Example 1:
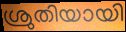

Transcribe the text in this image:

ശ്രുതിയായി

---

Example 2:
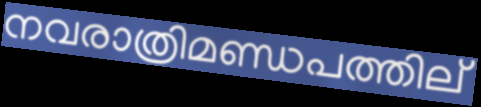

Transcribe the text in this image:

നവരാത്രിമണ്ഡപത്തില്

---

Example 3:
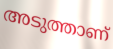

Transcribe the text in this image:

അടുത്താണ്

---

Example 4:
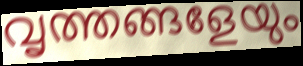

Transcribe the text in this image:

വൃത്തങ്ങളേയും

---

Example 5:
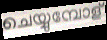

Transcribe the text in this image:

ചെയ്യുമ്പോള്